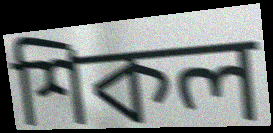
শিকল